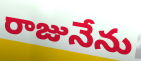
రాజునేను